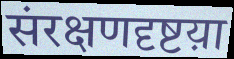
संरक्षणदृष्टय़ा